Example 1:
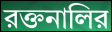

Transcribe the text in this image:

রক্তনালির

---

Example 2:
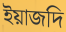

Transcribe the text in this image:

ইয়াজদি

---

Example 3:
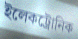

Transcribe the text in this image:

ইলেকট্রোনিক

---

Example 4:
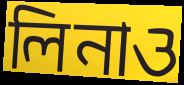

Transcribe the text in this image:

লিনাও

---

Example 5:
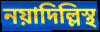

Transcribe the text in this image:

নয়াদিল্লিস্থ